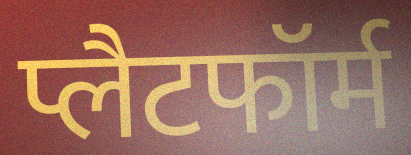
प्लैटफॉर्म